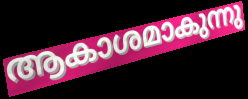
ആകാശമാകുന്നു